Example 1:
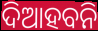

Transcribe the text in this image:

ଦିଆହବନି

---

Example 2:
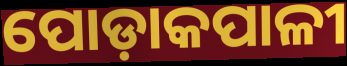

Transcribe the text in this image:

ପୋଡ଼ାକପାଳୀ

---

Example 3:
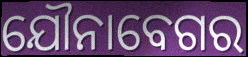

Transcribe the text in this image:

ଯୌନାବେଗର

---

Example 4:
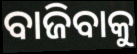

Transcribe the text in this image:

ବାଜିବାକୁ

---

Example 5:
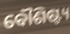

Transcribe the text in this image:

ବୌଶିଷ୍ଟ୍ୟ